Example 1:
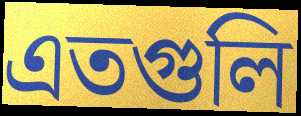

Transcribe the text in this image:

এতগুলি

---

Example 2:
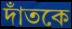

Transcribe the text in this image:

দাঁতকে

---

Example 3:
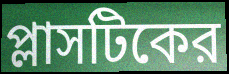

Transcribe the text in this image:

প্লাসটিকের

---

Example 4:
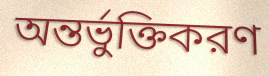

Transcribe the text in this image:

অন্তর্ভুক্তিকরণ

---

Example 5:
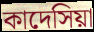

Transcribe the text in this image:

কাদেসিয়া